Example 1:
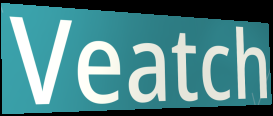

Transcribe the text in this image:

Veatch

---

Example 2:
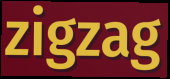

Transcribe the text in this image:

zigzag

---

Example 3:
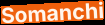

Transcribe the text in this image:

Somanchi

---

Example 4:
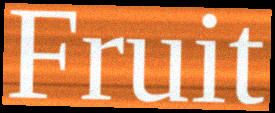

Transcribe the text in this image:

Fruit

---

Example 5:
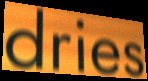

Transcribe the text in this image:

dries